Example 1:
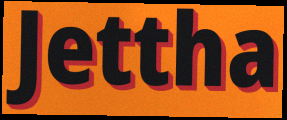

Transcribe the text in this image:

Jettha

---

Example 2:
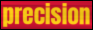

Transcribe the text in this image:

precision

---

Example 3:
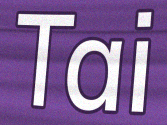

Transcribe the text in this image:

Tai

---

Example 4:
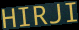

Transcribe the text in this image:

HIRJI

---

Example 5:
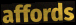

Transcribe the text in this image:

affords